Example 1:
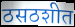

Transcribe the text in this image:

ठसठशीत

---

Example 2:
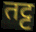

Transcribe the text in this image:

तट्ट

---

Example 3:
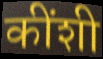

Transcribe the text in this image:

कींशी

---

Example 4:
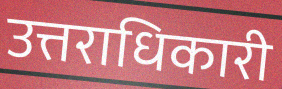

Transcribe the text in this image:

उत्तराधिकारी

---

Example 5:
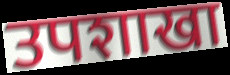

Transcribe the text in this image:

उपशाखा